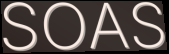
SOAS